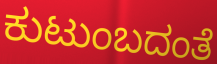
ಕುಟುಂಬದಂತೆ